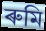
ৰুমি